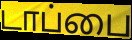
டாப்பை